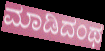
ಮಾಡಿದಂಥ